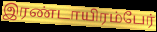
இரண்டாயிரம்பேர்